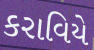
કરાવિયે